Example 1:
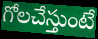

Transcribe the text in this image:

గోలచేస్తుంటే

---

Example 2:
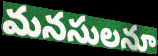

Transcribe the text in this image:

మనసులనూ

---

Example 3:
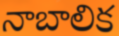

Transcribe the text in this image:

నాబాలిక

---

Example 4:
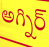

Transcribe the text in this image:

అగ్నిర్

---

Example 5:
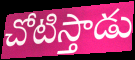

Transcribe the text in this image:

చోటిస్తాడు